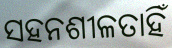
ସହନଶୀଳତାହିଁ